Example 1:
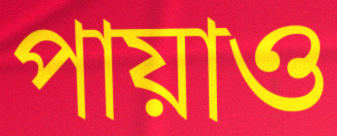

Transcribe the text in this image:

পায়াও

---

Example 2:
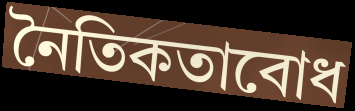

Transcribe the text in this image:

নৈতিকতাবোধ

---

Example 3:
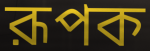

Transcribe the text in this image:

রূপক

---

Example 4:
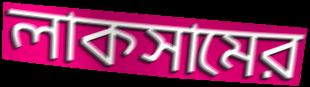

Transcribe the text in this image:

লাকসামের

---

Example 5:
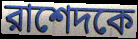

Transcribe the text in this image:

রাশেদকে